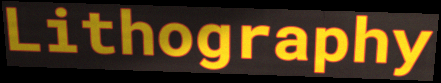
Lithography